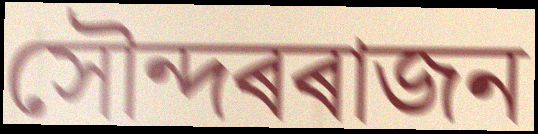
সৌন্দৰৰাজন